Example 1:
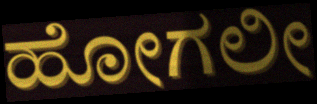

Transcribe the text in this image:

ಹೋಗಲೀ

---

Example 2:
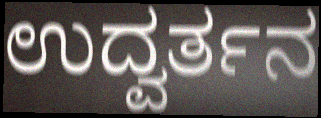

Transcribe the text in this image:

ಉದ್ವರ್ತನ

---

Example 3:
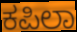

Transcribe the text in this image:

ಕಪಿಲಾ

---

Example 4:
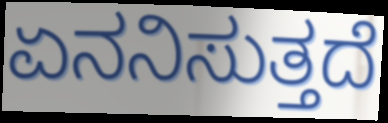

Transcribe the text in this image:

ಏನನಿಸುತ್ತದೆ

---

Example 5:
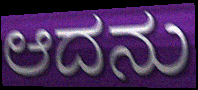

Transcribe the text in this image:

ಆದನು